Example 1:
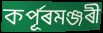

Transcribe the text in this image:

কৰ্পূৰমঞ্জৰী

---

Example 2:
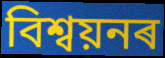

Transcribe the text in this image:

বিশ্বয়নৰ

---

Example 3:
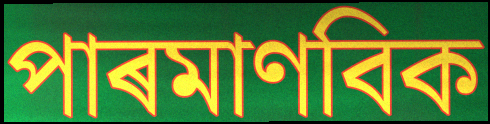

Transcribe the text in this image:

পাৰমাণবিক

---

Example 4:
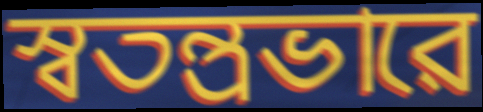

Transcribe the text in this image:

স্বতন্ত্ৰভাৱে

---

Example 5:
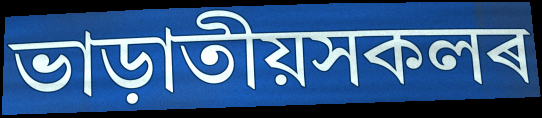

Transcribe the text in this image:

ভাড়াতীয়সকলৰ